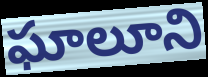
ఘాలూని